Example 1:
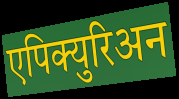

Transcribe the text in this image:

एपिक्युरिअन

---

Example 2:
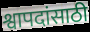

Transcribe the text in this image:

श्वापदांसाठी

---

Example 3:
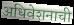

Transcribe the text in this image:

अधिवेशनाची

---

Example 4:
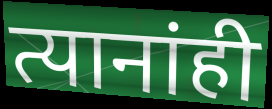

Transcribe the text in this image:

त्यानांही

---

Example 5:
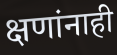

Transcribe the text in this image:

क्षणांनाही